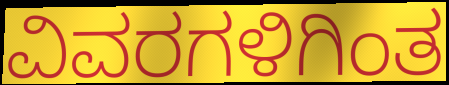
ವಿವರಗಳಿಗಿಂತ